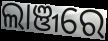
ଲାଞ୍ଜରେ